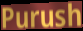
Purush